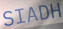
SIADH